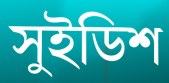
সুইডিশ